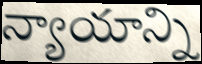
న్యాయాన్ని